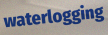
waterlogging